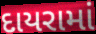
દાયરામાં